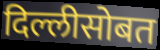
दिल्लीसोबत